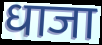
धाजा